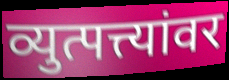
व्युत्पत्त्यांवर